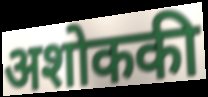
अशोककी